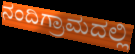
ನಂದಿಗ್ರಾಮದಲ್ಲಿ